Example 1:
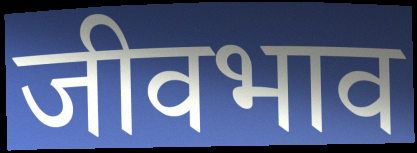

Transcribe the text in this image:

जीवभाव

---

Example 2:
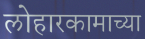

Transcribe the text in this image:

लोहारकामाच्या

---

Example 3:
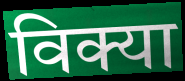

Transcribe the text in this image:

विक्या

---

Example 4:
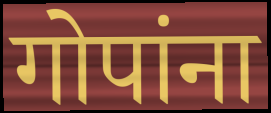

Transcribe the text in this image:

गोपांना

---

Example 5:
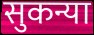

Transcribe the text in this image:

सुकन्या